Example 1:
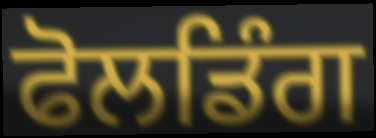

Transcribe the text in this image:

ਫੋਲਡਿੰਗ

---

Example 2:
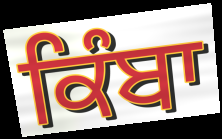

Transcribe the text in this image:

ਕਿੰਬਾ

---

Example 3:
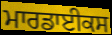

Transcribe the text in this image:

ਮਾਰਡਾਈਕਸ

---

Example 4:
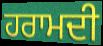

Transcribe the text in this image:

ਹਰਾਮਦੀ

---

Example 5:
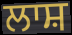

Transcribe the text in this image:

ਲਾਸ਼